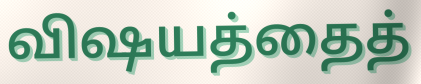
விஷயத்தைத்